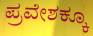
ಪ್ರವೇಶಕ್ಕೂ